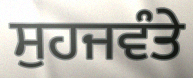
ਸੁਹਜਵੰਤੇ